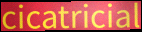
cicatricial